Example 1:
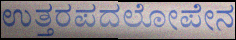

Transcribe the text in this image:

ಉತ್ತರಪದಲೋಪೇನ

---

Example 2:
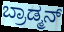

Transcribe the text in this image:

ಬ್ರಾಡ್ಮನ್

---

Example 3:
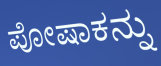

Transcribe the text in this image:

ಪೋಷಾಕನ್ನು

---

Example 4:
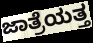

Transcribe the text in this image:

ಜಾತ್ರೆಯತ್ತ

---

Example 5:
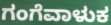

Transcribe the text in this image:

ಗಂಗೆವಾಳುಕ